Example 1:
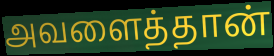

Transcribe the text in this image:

அவளைத்தான்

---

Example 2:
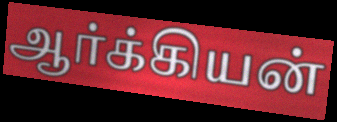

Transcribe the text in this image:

ஆர்க்கியன்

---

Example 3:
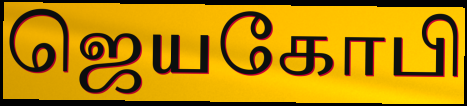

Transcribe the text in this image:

ஜெயகோபி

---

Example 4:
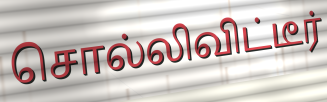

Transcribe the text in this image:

சொல்லிவிட்டீர்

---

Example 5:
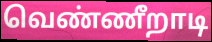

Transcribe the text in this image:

வெண்ணீறாடி